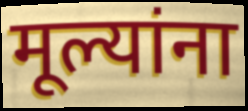
मूल्यांना